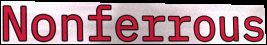
Nonferrous